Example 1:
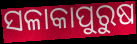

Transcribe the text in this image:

ସଳାକାପୁରୁଷ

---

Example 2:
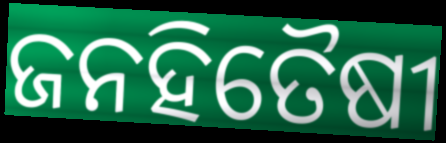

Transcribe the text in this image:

ଜନହିତୈଷୀ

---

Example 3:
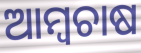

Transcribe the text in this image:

ଆମ୍ୱଚାଷ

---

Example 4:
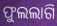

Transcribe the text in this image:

ଫୁଲଲାଗି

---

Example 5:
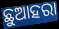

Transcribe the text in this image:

ଛୁଆହରା